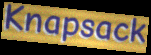
Knapsack